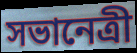
সভানেত্রী